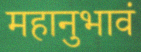
महानुभावं